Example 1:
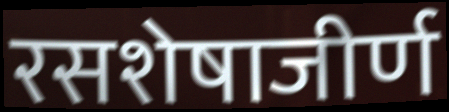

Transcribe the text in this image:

रसशेषाजीर्ण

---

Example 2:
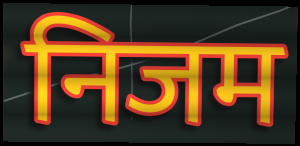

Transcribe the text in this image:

निजम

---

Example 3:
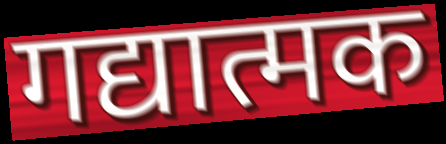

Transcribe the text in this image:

गद्यात्मक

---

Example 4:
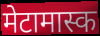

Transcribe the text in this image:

मेटामास्क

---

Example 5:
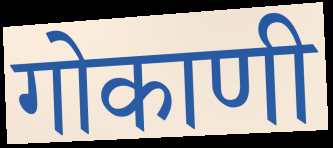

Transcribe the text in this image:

गोकाणी